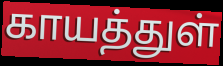
காயத்துள்